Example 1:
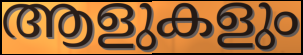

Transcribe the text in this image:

ആളുകളും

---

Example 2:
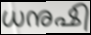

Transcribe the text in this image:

ധനുഷി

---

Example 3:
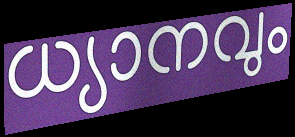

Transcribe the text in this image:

ധ്യാനവും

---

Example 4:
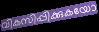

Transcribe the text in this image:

വികസിപ്പിക്കുകയോ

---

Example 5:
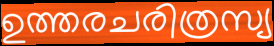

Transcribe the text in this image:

ഉത്തരചരിത്രസ്യ